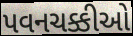
પવનચક્કીઓ